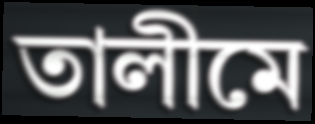
তালীমে